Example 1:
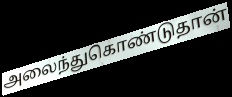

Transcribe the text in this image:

அலைந்துகொண்டுதான்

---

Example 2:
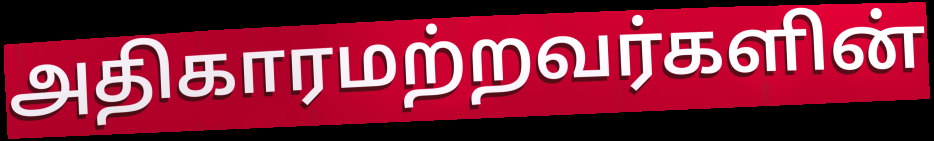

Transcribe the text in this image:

அதிகாரமற்றவர்களின்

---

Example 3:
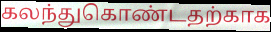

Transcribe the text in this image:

கலந்துகொண்டதற்காக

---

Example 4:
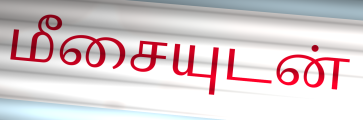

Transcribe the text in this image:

மீசையுடன்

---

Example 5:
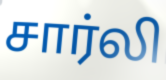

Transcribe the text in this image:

சார்லி